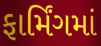
ફાર્મિંગમાં